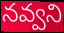
నవ్వని